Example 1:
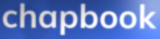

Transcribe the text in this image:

chapbook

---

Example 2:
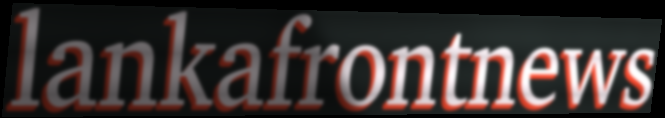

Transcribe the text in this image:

lankafrontnews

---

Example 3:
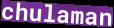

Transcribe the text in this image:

chulaman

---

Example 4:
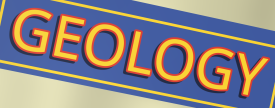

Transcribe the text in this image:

GEOLOGY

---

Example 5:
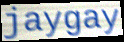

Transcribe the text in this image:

jaygay